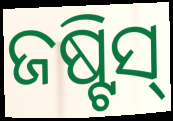
ଜଷ୍ଟିସ୍